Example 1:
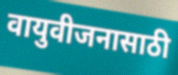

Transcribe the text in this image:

वायुवीजनासाठी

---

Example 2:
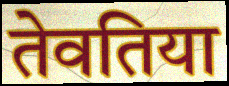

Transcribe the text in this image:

तेवतिया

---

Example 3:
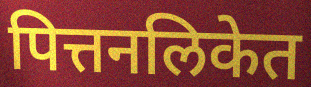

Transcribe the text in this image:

पित्तनलिकेत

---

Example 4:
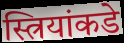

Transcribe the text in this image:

स्त्रियांकडे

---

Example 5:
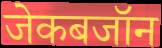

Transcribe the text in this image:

जेकबजॉन